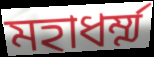
মহাধর্ম্ম